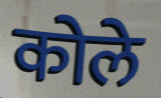
कोले